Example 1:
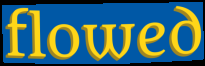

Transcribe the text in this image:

flowed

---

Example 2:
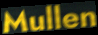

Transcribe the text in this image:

Mullen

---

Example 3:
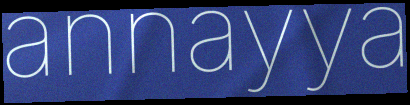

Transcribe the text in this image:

annayya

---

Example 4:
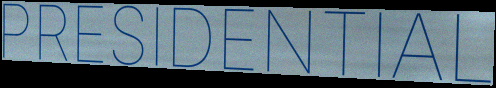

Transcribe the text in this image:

PRESIDENTIAL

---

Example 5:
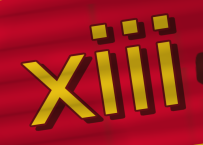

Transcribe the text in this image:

xiii